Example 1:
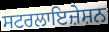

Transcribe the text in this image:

ਸਟਰਲਾਇਜ਼ੇਸ਼ਨ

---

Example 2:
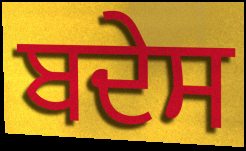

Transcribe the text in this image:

ਬਦੇਸ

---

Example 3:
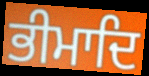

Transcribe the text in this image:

ਭੀਮਾਦਿ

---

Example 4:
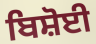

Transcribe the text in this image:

ਬਿਸ਼ੋਈ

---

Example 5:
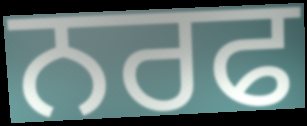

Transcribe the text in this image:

ਨਰਫ